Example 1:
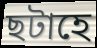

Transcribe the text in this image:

ছটাহে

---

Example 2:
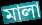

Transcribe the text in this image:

মালা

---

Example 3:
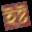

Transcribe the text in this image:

ইষ্ট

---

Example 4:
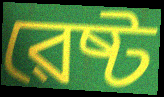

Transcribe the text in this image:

ৱেষ্ট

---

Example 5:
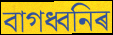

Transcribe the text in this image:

বাগধ্বনিৰ